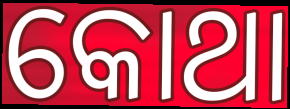
କୋଥା